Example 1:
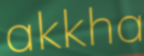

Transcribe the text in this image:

akkha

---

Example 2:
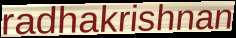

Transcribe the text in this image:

radhakrishnan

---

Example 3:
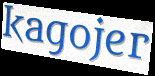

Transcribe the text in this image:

kagojer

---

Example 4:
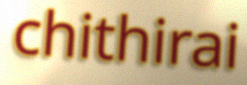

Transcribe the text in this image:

chithirai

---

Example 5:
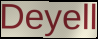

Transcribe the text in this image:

Deyell